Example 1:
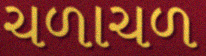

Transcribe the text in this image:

ચળાચળ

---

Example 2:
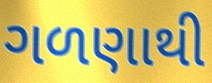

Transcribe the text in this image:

ગળણાથી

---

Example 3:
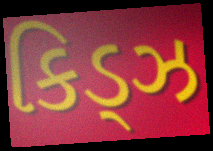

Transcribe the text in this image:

કિડ્ઝ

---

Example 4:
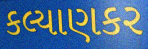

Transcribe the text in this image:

કલ્યાણકર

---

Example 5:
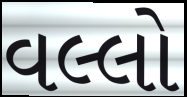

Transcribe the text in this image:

વલ્લો